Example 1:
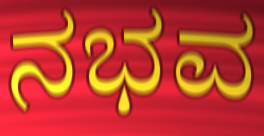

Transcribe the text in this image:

ನಭವ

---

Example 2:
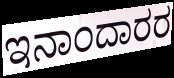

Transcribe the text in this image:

ಇನಾಂದಾರರ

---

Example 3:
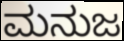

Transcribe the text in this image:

ಮನುಜ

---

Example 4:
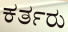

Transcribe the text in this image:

ಕರ್ತರು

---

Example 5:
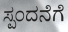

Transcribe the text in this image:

ಸ್ಪಂದನೆಗೆ